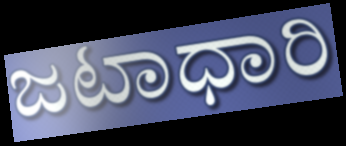
ಜಟಾಧಾರಿ